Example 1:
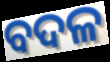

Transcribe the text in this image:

ବଦଳ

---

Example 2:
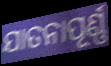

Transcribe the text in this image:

ଯାତନାପୂର୍ଣ୍ଣ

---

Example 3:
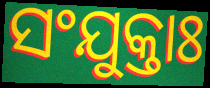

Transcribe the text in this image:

ସଂଯୁକ୍ତାଃ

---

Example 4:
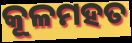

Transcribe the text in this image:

କୂଳମହତ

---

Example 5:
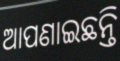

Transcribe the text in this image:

ଆପଣାଇଛନ୍ତି